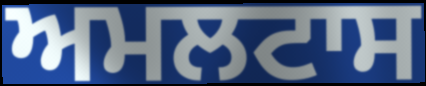
ਅਮਲਟਾਸ